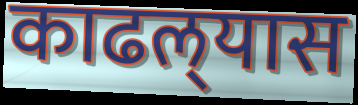
काढल्यास